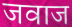
जवाज